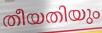
തീയതിയും